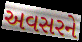
અવસરને